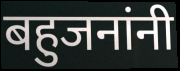
बहुजनांनी